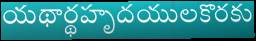
యథార్థహృదయులకొరకు